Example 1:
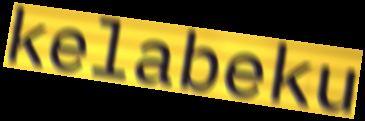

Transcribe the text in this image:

kelabeku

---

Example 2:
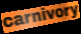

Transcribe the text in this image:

carnivory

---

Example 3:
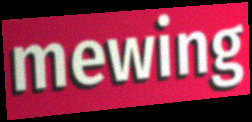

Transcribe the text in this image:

mewing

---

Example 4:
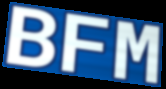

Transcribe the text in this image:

BFM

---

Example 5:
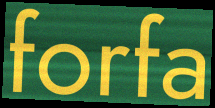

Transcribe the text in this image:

forfa